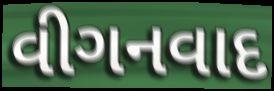
વીગનવાદ